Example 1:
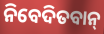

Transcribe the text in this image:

ନିବେଦିତବାନ୍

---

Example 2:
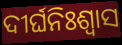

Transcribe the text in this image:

ଦୀର୍ଘନିଃଶ୍ବାସ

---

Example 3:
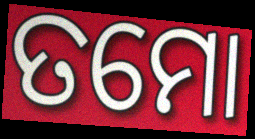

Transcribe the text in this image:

ତମୋ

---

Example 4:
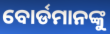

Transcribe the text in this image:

ବୋର୍ଡମାନଙ୍କୁ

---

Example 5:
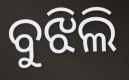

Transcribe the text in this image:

ବୁଝିଲି